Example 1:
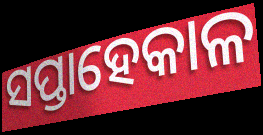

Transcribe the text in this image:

ସପ୍ତାହେକାଳ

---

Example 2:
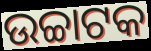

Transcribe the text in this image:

ଉଚ୍ଚାଟକ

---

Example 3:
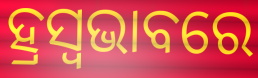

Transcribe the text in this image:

ହ୍ରସ୍ୱଭାବରେ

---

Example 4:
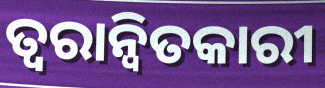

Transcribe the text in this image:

ତ୍ୱରାନ୍ୱିତକାରୀ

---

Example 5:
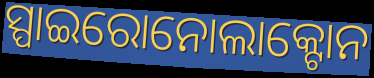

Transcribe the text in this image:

ସ୍ପାଇରୋନୋଲାକ୍ଟୋନ